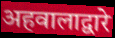
अहवालाद्वारे